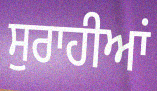
ਸੁਰਾਹੀਆਂ